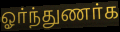
ஓர்ந்துணர்க